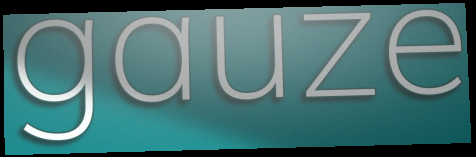
gauze